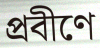
প্রবীণে